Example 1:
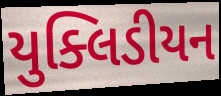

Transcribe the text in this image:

યુક્લિડીયન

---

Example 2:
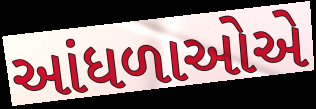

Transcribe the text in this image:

આંધળાઓએ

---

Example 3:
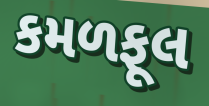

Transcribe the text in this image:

કમળફૂલ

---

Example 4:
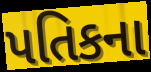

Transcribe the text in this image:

પતિકના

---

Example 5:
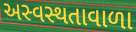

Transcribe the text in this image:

અસ્વસ્થતાવાળા